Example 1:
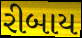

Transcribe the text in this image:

રીબાય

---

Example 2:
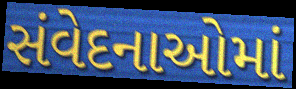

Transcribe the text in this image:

સંવેદનાઓમાં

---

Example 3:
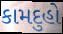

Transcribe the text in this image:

કામદુહો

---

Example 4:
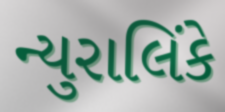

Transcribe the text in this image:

ન્યુરાલિંકે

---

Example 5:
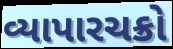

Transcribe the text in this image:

વ્યાપારચક્રો